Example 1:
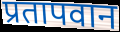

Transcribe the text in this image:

प्रतापवान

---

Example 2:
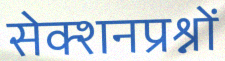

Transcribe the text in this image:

सेक्शनप्रश्नों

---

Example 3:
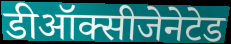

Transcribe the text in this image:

डीऑक्सीजेनेटेड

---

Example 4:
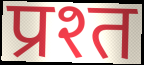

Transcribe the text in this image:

प्रश्त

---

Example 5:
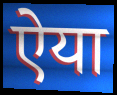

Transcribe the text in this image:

ऐया